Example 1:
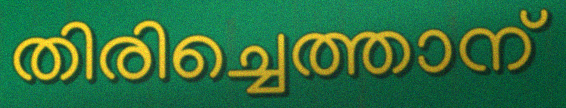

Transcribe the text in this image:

തിരിച്ചെത്താന്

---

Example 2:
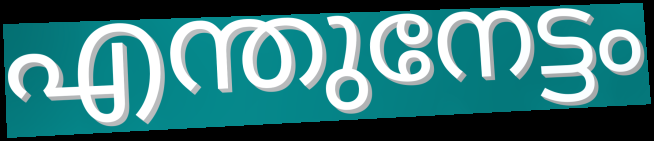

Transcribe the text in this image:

എന്തുനേട്ടം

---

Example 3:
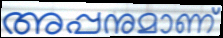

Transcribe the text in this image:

അപ്പനുമാണ്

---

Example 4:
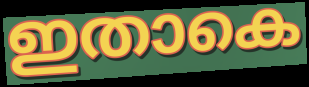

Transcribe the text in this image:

ഇതാകെ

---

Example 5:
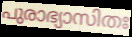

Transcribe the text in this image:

പുരാഭ്യാസിതഃ